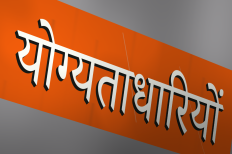
योग्यताधारियों